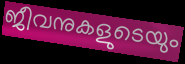
ജീവനുകളുടെയും